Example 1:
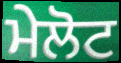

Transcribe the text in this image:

ਮੇਲੋਟ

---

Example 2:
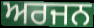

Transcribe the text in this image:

ਅਰਜਨ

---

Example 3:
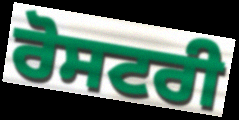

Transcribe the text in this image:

ਰੋਸਟਰੀ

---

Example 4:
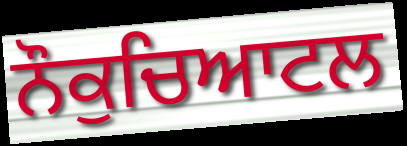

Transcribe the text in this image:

ਨੌਕੁਚਿਆਟਲ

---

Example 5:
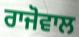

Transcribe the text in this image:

ਰਾਜੋਵਾਲ